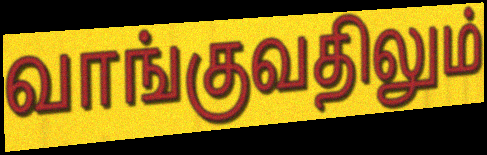
வாங்குவதிலும்